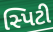
સ્પિટી